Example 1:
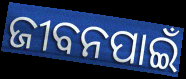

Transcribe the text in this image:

ଜୀବନପାଇଁ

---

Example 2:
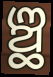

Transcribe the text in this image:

ଞ୍ଛ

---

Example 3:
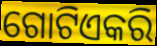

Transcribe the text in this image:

ଗୋଟିଏକରି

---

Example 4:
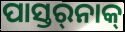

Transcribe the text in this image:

ପାସ୍ତର୍‍ନାକ୍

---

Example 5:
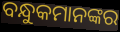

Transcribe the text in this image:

ବନ୍ଧୁକମାନଙ୍କର